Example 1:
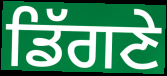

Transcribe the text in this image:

ਡਿੱਗਣੇ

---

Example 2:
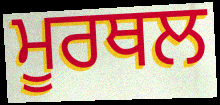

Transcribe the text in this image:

ਮੂਰਥਲ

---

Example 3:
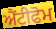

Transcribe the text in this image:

ਐਂਟੀਫੋਮ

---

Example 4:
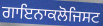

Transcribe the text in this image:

ਗਾਇਨਾਕਲੋਜਿਸਟ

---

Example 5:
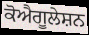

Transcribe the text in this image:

ਕੋਐਗੂਲੇਸ਼ਨ